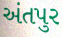
અંતપુર